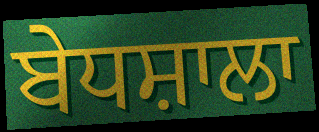
ਬੇਧਸ਼ਾਲਾ